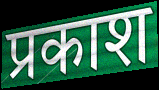
प्रकाश